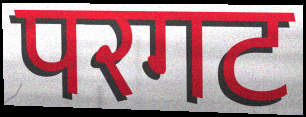
परगट